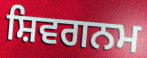
ਸ਼ਿਵਗਨਮ